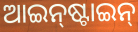
ଆଇନ୍‌ଷ୍ଟାଇନ୍